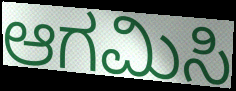
ಆಗಮಿಸಿ